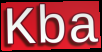
Kba